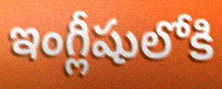
ఇంగ్లీషులోకి